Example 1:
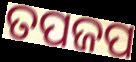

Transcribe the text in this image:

ତପଜପ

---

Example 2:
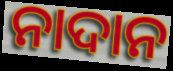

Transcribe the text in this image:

ନାଦାନ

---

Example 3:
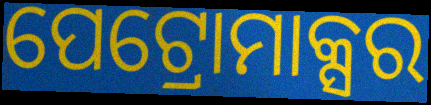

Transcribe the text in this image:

ପେଟ୍ରୋମାକ୍ସର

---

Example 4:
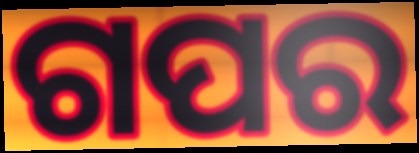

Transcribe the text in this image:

ଗପର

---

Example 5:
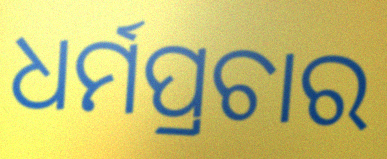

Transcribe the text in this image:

ଧର୍ମପ୍ରଚାର